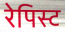
रेपिस्ट